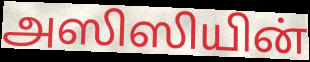
அஸிஸியின்